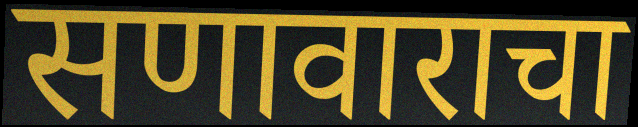
सणावाराचा